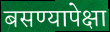
बसण्यापेक्षा